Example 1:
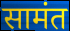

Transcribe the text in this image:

सामंत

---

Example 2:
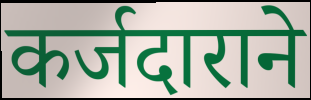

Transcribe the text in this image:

कर्जदाराने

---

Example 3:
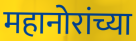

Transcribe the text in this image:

महानोरांच्या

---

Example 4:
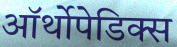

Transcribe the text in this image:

ऑर्थोपेडिक्स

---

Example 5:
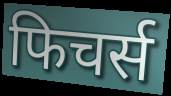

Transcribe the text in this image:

फिचर्स